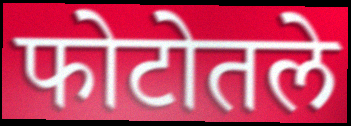
फोटोतले